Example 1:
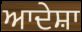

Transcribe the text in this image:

ਆਦੇਸ਼ਾ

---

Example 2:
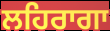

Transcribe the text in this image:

ਲਹਿਰਾਗਾ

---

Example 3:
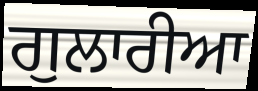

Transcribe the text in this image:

ਗੁਲਾਰੀਆ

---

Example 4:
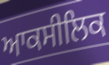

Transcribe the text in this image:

ਆਕਸੀਲਿਕ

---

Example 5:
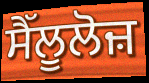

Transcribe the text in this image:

ਸੈੱਲੂਲੋਜ਼